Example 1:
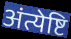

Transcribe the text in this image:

अंत्येष्टि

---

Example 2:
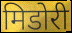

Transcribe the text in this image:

मिडोरी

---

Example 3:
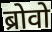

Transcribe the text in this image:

ब्रोवो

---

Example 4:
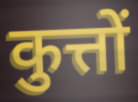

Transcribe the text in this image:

कुत्तों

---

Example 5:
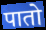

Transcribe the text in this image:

पातो